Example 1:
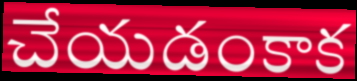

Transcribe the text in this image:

చేయడంకాక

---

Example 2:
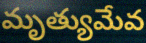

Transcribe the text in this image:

మృత్యుమేవ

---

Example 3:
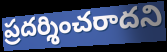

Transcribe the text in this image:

ప్రదర్శించరాదని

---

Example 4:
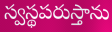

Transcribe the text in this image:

స్వస్థపరుస్తాను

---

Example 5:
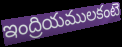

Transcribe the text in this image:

ఇంద్రియములకంటె